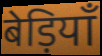
बेड़ियाँ